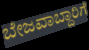
ಬೇಜವಾಬ್ದಾರಿಗೆ